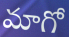
మాగో